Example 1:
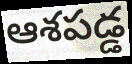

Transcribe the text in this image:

ఆశపడ్డ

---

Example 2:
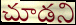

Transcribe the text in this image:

చూడని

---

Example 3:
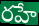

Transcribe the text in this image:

రహే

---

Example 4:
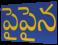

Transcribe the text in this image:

పైపైన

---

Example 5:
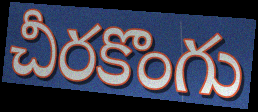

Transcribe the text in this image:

చీరకొంగు